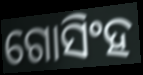
ଗୋସିଂହ